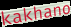
kakhano